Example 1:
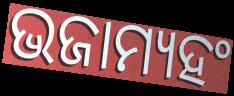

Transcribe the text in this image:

ଭଜାମ୍ୟହଂ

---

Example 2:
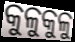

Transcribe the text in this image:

କୁଳୁକୁଳୁ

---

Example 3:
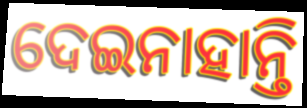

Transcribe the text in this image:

ଦେଇନାହାନ୍ତି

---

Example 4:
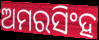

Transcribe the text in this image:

ଅମରସିଂହ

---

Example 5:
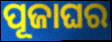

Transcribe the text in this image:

ପୂଜାଘର